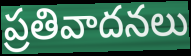
ప్రతివాదనలు